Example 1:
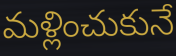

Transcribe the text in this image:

మళ్లించుకునే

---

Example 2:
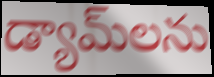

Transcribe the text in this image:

డ్యామ్‌లను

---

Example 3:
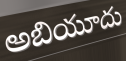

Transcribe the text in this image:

అబియూదు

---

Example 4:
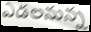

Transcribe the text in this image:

ఎడలనున్న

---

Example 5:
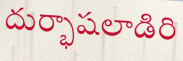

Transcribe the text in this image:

దుర్భాషలాడిరి